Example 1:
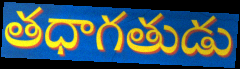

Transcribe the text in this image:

తధాగతుడు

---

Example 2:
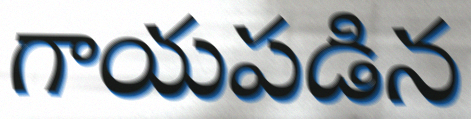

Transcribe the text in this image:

గాయపడిన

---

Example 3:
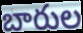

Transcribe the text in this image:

బారుల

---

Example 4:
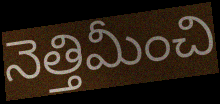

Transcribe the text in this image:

నెత్తిమీంచి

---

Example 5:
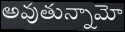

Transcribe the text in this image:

అవుతున్నామో